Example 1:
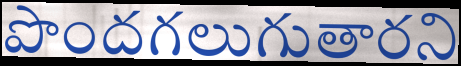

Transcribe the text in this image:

పొందగలుగుతారని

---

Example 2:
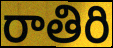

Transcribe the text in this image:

రాతిరి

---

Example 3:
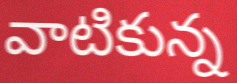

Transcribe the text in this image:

వాటికున్న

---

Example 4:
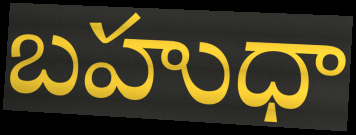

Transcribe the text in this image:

బహుధా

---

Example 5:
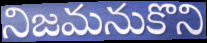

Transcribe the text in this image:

నిజమనుకొని